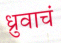
ध्रुवाचं